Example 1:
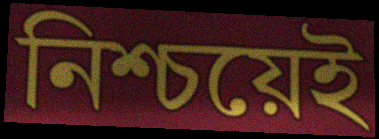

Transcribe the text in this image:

নিশ্চয়েই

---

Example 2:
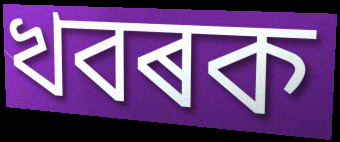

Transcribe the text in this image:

খবৰক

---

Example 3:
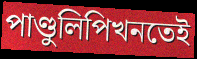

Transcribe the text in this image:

পাণ্ডুলিপিখনতেই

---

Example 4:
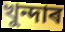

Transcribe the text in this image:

খুন্দাৰ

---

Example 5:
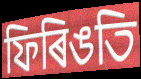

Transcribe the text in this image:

ফিৰিঙতি